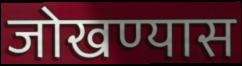
जोखण्यास